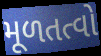
મૂળતત્વો